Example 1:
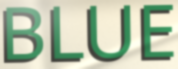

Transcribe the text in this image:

BLUE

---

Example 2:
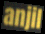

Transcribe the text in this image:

anjil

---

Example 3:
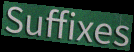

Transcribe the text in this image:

Suffixes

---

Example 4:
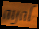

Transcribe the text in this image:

ayal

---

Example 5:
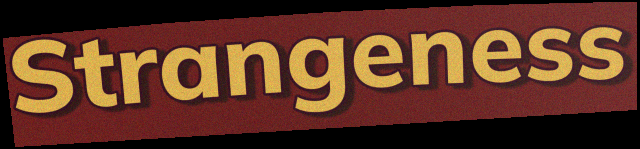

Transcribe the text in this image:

Strangeness